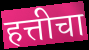
हत्तीचा